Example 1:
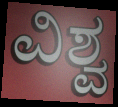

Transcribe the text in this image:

ವಿಶ್ವ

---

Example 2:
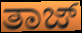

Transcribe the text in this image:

ತಾಜ್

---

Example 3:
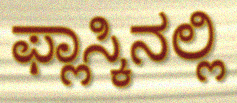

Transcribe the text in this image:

ಫ್ಲಾಸ್ಕಿನಲ್ಲಿ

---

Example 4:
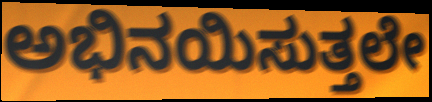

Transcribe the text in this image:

ಅಭಿನಯಿಸುತ್ತಲೇ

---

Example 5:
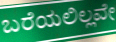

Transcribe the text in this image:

ಬರೆಯಲಿಲ್ಲವೇ